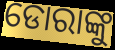
ଡୋରାଙ୍କୁ